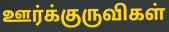
ஊர்க்குருவிகள்